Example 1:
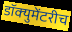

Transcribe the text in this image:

डॉक्युमेंटरीच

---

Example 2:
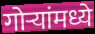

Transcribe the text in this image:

गोऱ्यांमध्ये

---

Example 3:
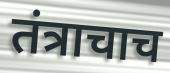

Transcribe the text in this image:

तंत्राचाच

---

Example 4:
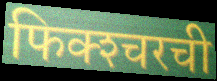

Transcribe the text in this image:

फिक्श्चरची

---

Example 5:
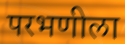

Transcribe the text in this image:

परभणीला